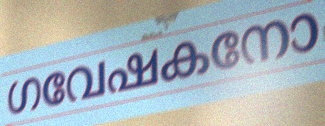
ഗവേഷകനോ